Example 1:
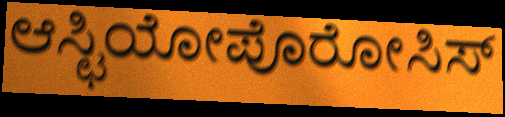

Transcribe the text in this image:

ಆಸ್ಟಿಯೋಪೊರೋಸಿಸ್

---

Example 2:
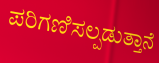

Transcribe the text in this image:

ಪರಿಗಣಿಸಲ್ಪಡುತ್ತಾನೆ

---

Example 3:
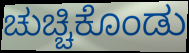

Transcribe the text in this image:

ಚುಚ್ಚಿಕೊಂಡು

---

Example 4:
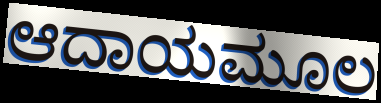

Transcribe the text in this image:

ಆದಾಯಮೂಲ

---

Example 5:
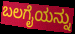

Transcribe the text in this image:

ಬಲಗೈಯನ್ನು